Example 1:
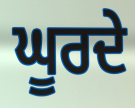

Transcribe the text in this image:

ਘੂਰਦੇ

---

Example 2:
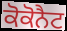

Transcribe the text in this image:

ਕੋਕੋਨੈਟ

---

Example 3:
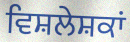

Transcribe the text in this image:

ਵਿਸ਼ਲੇਸ਼ਕਾਂ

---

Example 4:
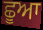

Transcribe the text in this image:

ਛੂਆ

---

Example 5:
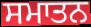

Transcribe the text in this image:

ਸਮਾਤਨ